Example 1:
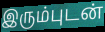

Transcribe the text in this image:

இரும்புடன்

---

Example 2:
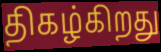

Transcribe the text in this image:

திகழ்கிறது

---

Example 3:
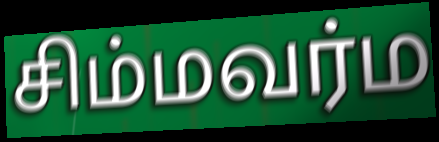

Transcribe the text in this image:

சிம்மவர்ம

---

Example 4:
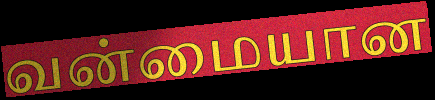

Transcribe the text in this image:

வன்மையான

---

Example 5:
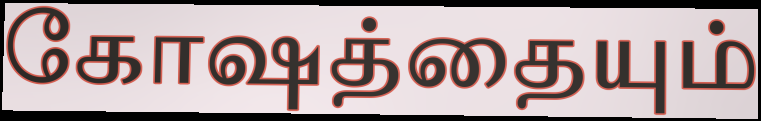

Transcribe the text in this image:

கோஷத்தையும்